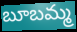
బూబమ్మ